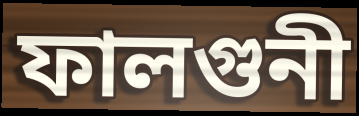
ফালগুনী